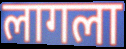
लागला